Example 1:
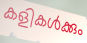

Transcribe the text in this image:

കളികൾക്കും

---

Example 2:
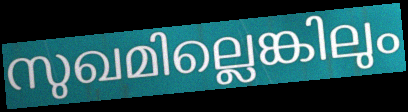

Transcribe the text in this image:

സുഖമില്ലെങ്കിലും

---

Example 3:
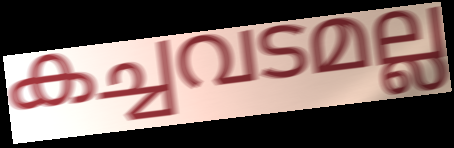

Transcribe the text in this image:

കച്ചവടമല്ല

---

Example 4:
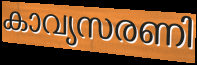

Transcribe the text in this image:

കാവ്യസരണി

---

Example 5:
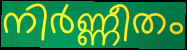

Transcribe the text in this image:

നിർണ്ണീതം